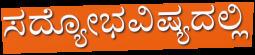
ಸದ್ಯೋಭವಿಷ್ಯದಲ್ಲಿ